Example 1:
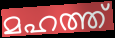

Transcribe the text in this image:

മഹത്ത്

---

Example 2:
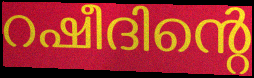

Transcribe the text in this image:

റഷീദിന്റെ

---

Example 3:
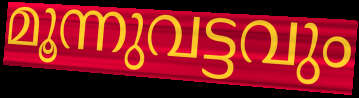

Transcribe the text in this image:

മൂന്നുവട്ടവും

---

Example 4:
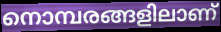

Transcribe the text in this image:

നൊമ്പരങ്ങളിലാണ്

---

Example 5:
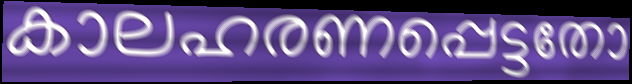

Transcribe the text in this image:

കാലഹരണപ്പെട്ടതോ